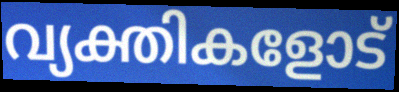
വ്യക്തികളോട്